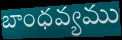
బాంధవ్యము